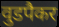
वुडपैकर